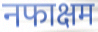
नफाक्षम